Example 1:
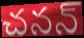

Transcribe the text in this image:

చనన్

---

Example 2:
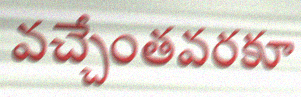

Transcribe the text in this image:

వచ్చేంతవరకూ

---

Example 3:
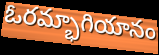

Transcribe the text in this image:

ఓరమ్భాగియానం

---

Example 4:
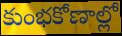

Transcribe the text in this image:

కుంభకోణాల్లో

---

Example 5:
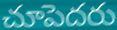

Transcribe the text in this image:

చూపెదరు